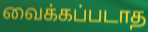
வைக்கப்படாத